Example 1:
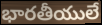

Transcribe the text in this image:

భారతీయులే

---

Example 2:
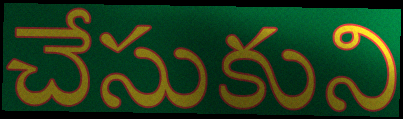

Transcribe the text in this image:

చేసుకుని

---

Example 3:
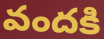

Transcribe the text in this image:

వందకి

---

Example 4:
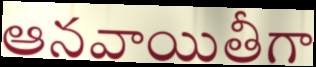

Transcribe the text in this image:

ఆనవాయితీగా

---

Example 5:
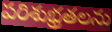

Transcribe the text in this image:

పరిశుభ్రతలను